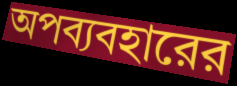
অপব্যবহারের